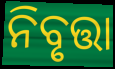
ନିବୃତ୍ତା